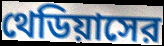
থেডিয়াসের